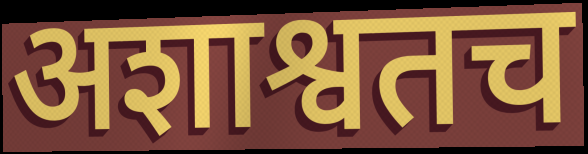
अशाश्वतच